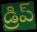
డ్రిప్